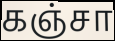
கஞ்சா